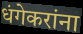
धंगेकरांना